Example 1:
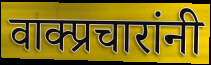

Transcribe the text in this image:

वाक्प्रचारांनी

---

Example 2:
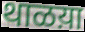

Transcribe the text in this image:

थाळय़ा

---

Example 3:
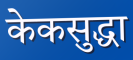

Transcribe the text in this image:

केकसुद्धा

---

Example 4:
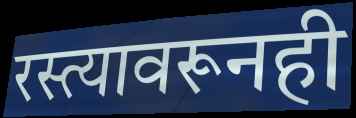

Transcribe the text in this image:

रस्त्यावरूनही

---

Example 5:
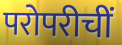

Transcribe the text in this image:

परोपरीचीं